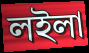
লইলা